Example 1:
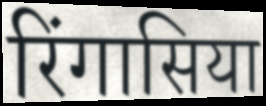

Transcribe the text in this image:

रिंगासिया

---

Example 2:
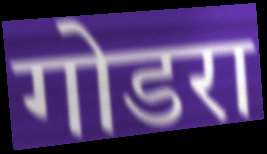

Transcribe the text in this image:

गोडरा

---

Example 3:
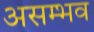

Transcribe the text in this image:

असम्भव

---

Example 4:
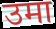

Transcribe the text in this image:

उमा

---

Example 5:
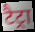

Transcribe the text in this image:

टैट्रा